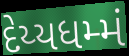
દેય્યધમ્મં